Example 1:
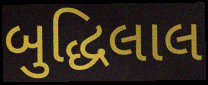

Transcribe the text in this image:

બુદ્ધિલાલ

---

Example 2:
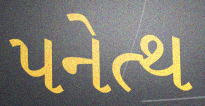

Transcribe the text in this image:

પનેત્થ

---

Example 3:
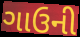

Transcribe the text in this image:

ગાઉની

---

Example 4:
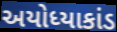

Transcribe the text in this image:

અયોધ્યાકાંડ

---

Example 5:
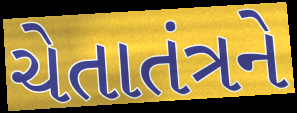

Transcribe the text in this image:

ચેતાતંત્રને